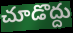
చూడొద్దు